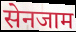
सेनजाम